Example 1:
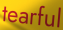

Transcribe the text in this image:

tearful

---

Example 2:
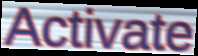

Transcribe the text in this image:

Activate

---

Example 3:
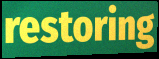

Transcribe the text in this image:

restoring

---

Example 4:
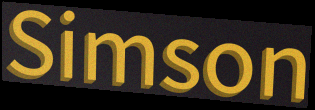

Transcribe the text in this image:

Simson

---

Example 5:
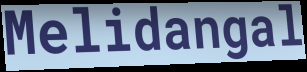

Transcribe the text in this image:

Melidangal